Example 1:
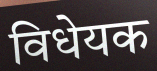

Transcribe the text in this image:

विधेयक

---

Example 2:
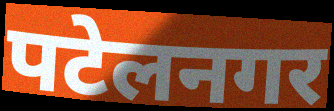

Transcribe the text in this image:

पटेलनगर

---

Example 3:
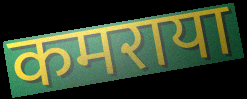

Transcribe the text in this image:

कमराया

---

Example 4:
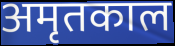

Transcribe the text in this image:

अमृतकाल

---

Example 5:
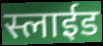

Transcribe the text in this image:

स्लाईड